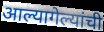
आल्यागेल्यांची